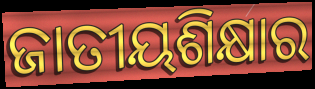
ଜାତୀୟଶିକ୍ଷାର